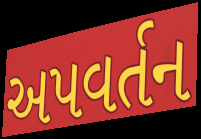
અપવર્તન